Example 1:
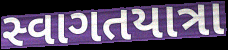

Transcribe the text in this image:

સ્વાગતયાત્રા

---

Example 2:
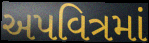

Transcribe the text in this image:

અપવિત્રમાં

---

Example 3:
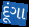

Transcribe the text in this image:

દૂંગા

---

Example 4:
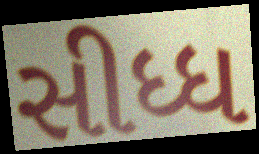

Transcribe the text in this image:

સીધ્ધ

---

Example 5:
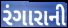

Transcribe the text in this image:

રંગારાની